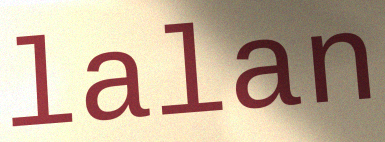
lalan